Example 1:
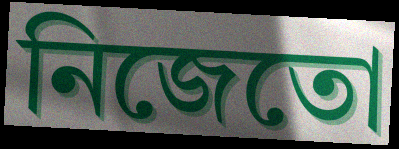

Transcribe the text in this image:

নিজেতো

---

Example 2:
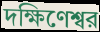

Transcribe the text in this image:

দক্ষিণেশ্বর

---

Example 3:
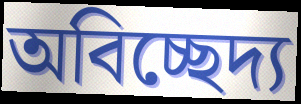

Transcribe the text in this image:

অবিচ্ছেদ্য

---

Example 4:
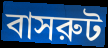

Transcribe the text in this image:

বাসরুট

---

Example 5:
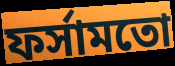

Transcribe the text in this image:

ফর্সামতো